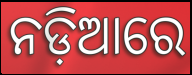
ନଡ଼ିଆରେ